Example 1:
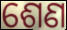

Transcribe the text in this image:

ଶେଣ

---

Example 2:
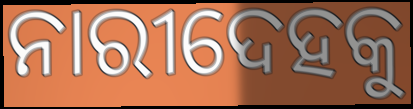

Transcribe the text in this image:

ନାରୀଦେହକୁ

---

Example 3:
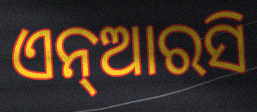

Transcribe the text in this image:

ଏନ୍ଆରସି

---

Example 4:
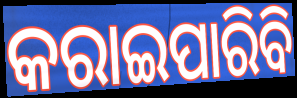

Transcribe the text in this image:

କରାଇପାରିବି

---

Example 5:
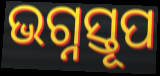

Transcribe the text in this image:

ଭଗ୍ନସ୍ତୂପ